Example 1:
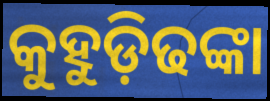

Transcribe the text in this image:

କୁହୁଡ଼ିଢଙ୍କା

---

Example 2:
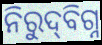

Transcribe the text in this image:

ନିରୁଦ୍‌ବିଗ୍ନ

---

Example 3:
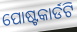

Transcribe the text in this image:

ପୋଷ୍ଟକାର୍ଡଟି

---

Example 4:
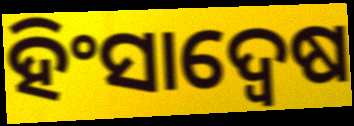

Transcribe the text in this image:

ହିଂସାଦ୍ୱେଷ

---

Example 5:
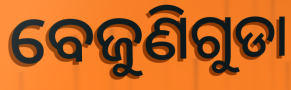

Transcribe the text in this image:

ବେଜୁଣିଗୁଡା